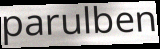
parulben